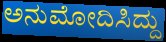
ಅನುಮೋದಿಸಿದ್ದು